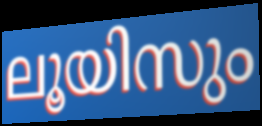
ലൂയിസും